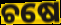
ଚଷେ